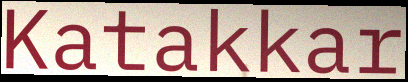
Katakkar